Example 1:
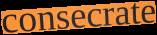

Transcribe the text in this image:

consecrate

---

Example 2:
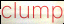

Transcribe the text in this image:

clump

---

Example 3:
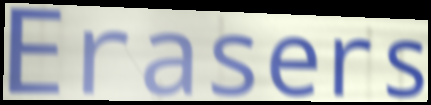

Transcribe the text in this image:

Erasers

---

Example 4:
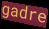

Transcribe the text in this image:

gadre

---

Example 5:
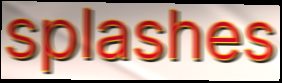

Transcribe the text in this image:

splashes